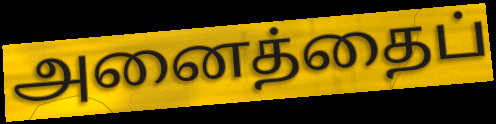
அனைத்தைப்